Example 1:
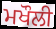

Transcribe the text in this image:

ਮਖੌਲੀ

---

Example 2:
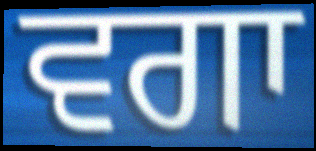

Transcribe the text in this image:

ਵਗਾ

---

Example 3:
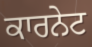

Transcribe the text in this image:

ਕਾਰਨੇਟ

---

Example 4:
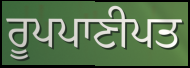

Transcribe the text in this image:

ਰੂਪਪਾਣੀਪਤ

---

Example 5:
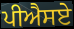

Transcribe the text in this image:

ਪੀਐਸਏ